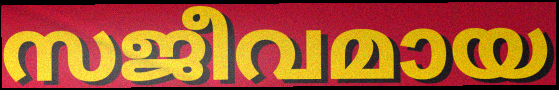
സജീവമായ